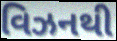
વિઝનથી